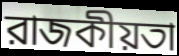
রাজকীয়তা